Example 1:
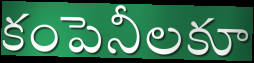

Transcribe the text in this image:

కంపెనీలకూ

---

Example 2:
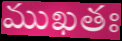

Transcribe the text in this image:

ముఖతః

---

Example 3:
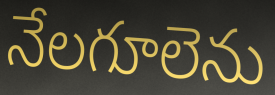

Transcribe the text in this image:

నేలగూలెను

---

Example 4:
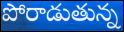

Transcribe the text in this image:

పోరాడుతున్న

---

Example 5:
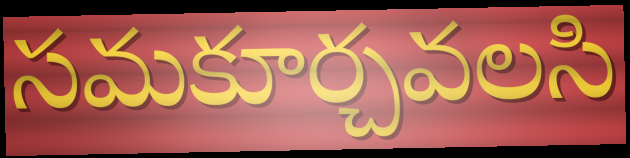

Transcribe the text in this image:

సమకూర్చవలసి